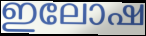
ഇലോഷ